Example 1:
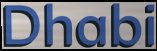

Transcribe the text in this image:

Dhabi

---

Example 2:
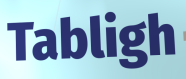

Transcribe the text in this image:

Tabligh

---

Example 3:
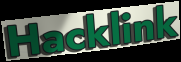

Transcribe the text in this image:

Hacklink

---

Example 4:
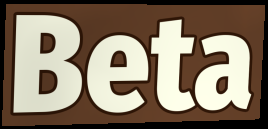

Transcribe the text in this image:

Beta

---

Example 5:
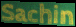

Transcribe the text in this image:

Sachin